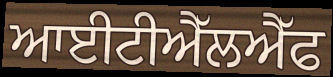
ਆਈਟੀਐੱਲਐੱਫ